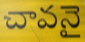
చావనై